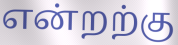
என்றற்கு